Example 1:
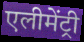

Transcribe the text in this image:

एलीमेंट्री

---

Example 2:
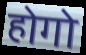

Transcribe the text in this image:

होगो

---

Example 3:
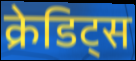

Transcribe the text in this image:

क्रेडिट्स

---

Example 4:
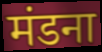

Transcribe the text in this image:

मंडना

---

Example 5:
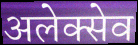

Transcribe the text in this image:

अलेक्सेव